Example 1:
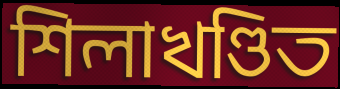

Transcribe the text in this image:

শিলাখণ্ডিত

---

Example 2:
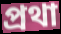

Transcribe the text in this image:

প্ৰথা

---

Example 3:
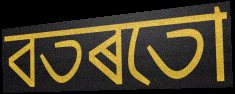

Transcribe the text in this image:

বতৰতো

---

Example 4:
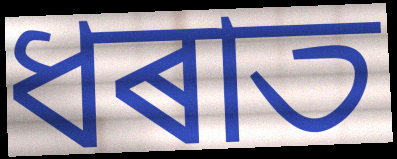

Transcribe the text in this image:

ধৰাত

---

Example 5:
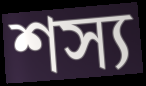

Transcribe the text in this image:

শস্য